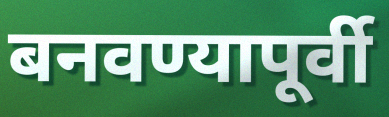
बनवण्यापूर्वी